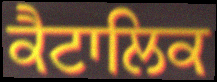
ਕੈਟਾਲਿਕ